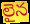
లైన